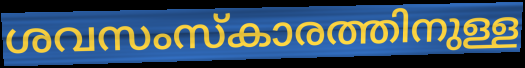
ശവസംസ്കാരത്തിനുള്ള